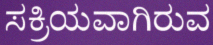
ಸಕ್ರಿಯವಾಗಿರುವ